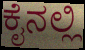
ಕೈನಲ್ಲಿ